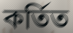
কর্তিত